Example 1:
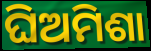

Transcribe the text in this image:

ଘିଅମିଶା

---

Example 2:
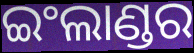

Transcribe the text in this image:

ଇଂଲାଣ୍ଡର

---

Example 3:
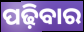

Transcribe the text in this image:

ପଢ଼ିବାର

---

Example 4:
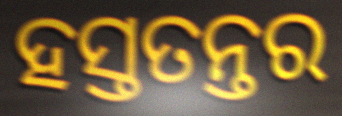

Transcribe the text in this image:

ହସ୍ତତନ୍ତର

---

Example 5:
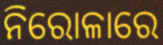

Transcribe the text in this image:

ନିରୋଳାରେ